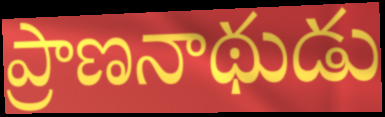
ప్రాణనాథుడు